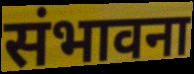
संभावना